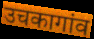
उचकागांव